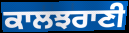
ਕਾਲਝਰਾਣੀ